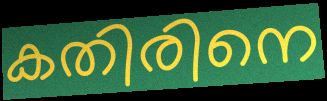
കതിരിനെ